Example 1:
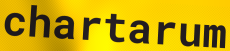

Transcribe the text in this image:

chartarum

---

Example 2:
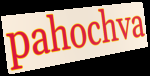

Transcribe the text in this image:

pahochva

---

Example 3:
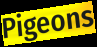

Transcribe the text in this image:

Pigeons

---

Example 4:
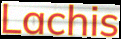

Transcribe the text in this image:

Lachis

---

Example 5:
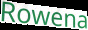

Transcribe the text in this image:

Rowena